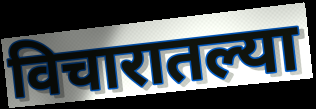
विचारातल्या